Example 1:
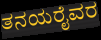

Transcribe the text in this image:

ತನಯರೈವರ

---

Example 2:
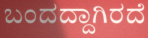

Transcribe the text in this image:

ಬಂದದ್ದಾಗಿರದೆ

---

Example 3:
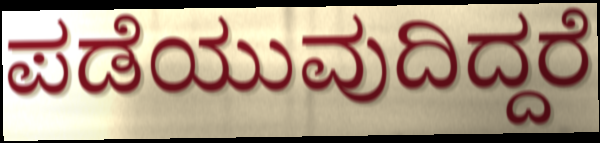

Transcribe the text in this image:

ಪಡೆಯುವುದಿದ್ದರೆ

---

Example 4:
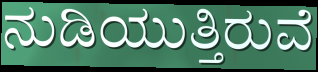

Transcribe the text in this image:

ನುಡಿಯುತ್ತಿರುವೆ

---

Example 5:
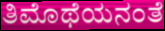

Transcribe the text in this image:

ತಿಮೊಥೆಯನಂತೆ